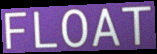
FLOAT